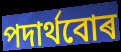
পদাৰ্থবোৰ